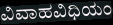
ವಿವಾಹವಿಧಿಯಂ